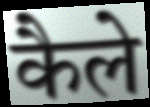
कैले